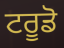
ਟਰੂਡੋ